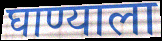
घाण्याला